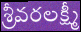
శ్రీవరలక్ష్మీ